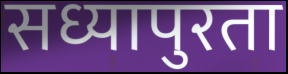
सध्यापुरता